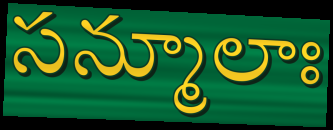
సన్మూలాః